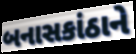
બનાસકાંઠાને